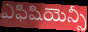
ఎఫిషియెన్సీ